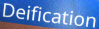
Deification